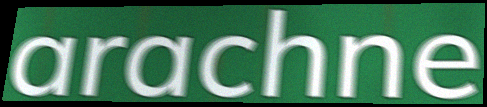
arachne